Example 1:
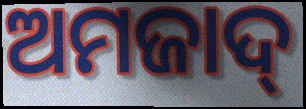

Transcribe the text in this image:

ଅମଜାଦ୍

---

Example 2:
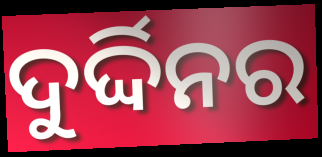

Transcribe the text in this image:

ଦୁର୍ଦ୍ଦିନର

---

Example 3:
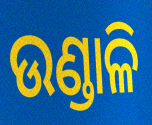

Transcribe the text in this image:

ଉଣ୍ଡାଳି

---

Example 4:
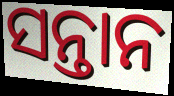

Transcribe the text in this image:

ସନ୍ତାନ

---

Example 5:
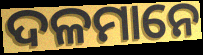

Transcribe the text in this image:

ଦଳମାନେ